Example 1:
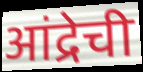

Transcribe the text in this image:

आंद्रेची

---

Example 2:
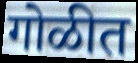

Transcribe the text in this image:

गोळीत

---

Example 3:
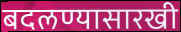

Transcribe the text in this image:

बदलण्यासारखी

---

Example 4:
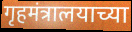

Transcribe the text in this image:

गृहमंत्रालयाच्या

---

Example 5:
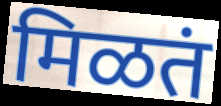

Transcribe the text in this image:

मिळतं